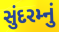
સુંદરમ્નું